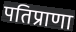
पतिप्राणा